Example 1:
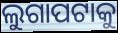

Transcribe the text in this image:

ଲୁଗାପଟାକୁ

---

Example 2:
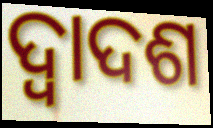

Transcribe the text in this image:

ଦ୍ଵାଦଶ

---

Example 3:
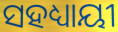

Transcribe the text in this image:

ସହଧ୍ୟାୟୀ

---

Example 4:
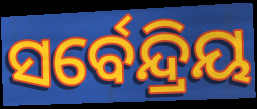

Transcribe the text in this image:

ସର୍ବେନ୍ଦ୍ରିୟ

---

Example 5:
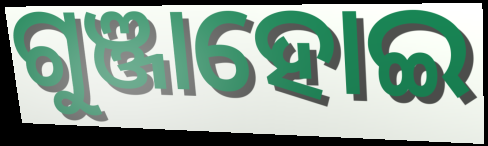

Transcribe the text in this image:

ଗୁଞ୍ଜାହୋଇ